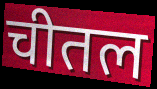
चीतल